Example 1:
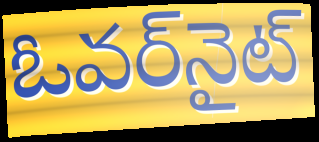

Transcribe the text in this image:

ఓవర్‌నైట్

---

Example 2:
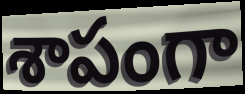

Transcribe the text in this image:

శాపంగా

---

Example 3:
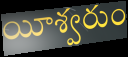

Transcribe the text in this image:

యీశ్వరుం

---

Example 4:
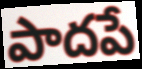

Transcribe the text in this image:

పాదపే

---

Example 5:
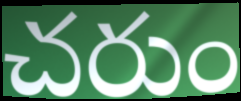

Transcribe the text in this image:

చరుం